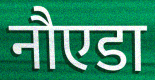
नौएडा